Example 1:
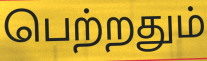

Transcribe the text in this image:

பெற்றதும்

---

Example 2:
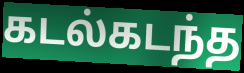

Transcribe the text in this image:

கடல்கடந்த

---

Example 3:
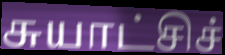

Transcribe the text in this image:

சுயாட்சிச்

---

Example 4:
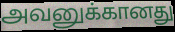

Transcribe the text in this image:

அவனுக்கானது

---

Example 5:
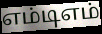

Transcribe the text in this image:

எம்டிஎம்